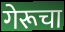
गेरूचा